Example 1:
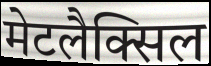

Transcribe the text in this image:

मेटलैक्सिल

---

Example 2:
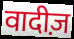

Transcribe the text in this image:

वादीज़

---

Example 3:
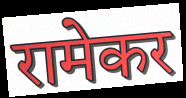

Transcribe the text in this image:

रामेकर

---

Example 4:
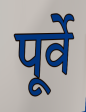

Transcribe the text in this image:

पूर्वे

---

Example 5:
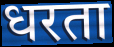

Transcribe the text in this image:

धरता